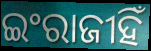
ଇଂରାଜୀହିଁ